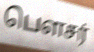
பௌசர்